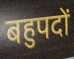
बहुपदों